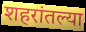
शहरांतल्या